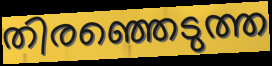
തിരഞ്ഞെടുത്ത